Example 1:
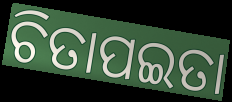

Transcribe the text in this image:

ଚିତାପଇତା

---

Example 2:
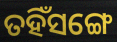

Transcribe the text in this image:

ତହିଁସଙ୍ଗେ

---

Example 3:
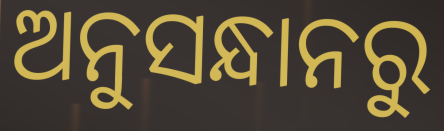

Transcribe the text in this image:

ଅନୁସନ୍ଧାନରୁ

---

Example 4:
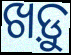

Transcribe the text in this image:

ଖଡ଼ୁ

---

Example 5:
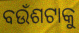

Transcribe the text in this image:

ବଉଁଶଟାକୁ